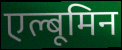
एल्बूमिन